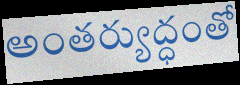
అంతర్యుద్ధంతో